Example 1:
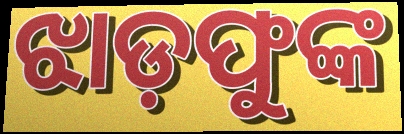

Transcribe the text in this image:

ଝାଡ଼ଫୁଙ୍କ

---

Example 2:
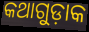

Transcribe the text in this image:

କଥାଗୁଡ଼ାକ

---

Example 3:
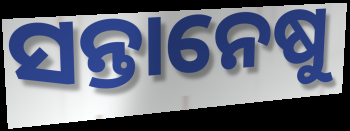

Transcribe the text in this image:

ସନ୍ତାନେଷୁ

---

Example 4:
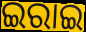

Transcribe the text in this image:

ଇରାଇ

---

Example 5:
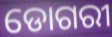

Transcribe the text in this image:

ଡୋଗରୀ